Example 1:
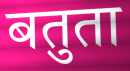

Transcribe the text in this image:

बतुता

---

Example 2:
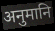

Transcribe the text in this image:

अनुमानि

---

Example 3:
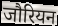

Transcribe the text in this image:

जौरियन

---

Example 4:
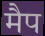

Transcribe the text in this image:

मैप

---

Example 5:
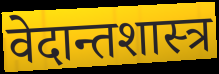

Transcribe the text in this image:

वेदान्तशास्त्र